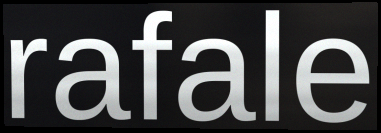
rafale